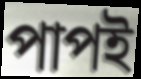
পাপই